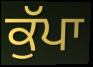
ਕੁੱਪਾ